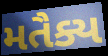
મતૈક્ય